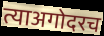
त्याअगोदरच